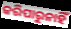
କରିପାରୁନାହିଁ